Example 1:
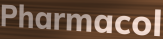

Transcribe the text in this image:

Pharmacol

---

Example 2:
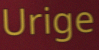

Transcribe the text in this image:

Urige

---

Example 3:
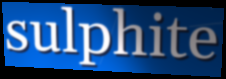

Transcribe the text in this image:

sulphite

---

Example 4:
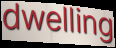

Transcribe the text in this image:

dwelling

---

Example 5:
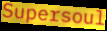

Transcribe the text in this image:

Supersoul